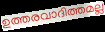
ഉത്തരവാദിത്തമല്ല